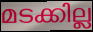
മടക്കില്ല